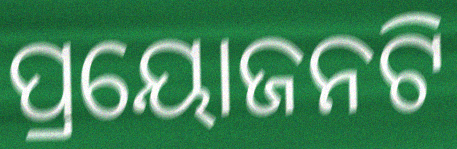
ପ୍ରୟୋଜନଟି